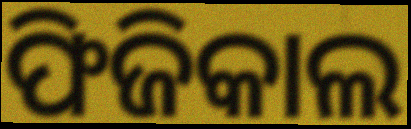
ଫିଜିକାଲ